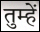
तुम्‍हें